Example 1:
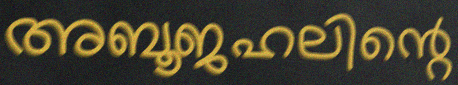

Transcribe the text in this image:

അബൂജഹലിന്റെ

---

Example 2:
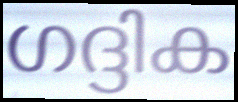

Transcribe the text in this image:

ഗദ്ദിക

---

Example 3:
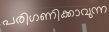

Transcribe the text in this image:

പരിഗണിക്കാവുന്ന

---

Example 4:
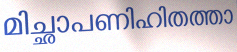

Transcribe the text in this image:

മിച്ഛാപണിഹിതത്താ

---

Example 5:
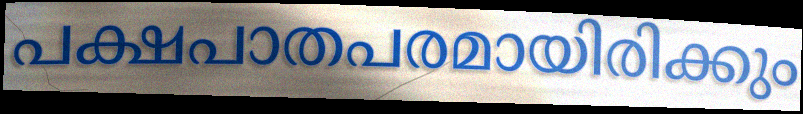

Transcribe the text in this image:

പക്ഷപാതപരമായിരിക്കും